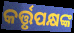
କର୍ତ୍ତୃପକ୍ଷଙ୍କ